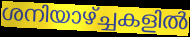
ശനിയാഴ്ച്ചകളിൽ